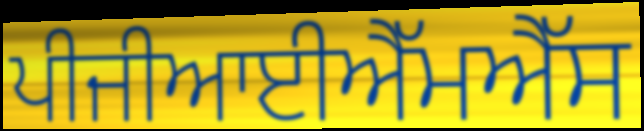
ਪੀਜੀਆਈਐੱਮਐੱਸ